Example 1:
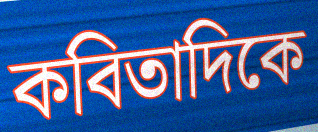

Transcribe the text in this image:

কবিতাদিকে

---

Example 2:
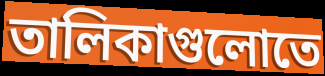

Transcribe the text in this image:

তালিকাগুলোতে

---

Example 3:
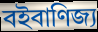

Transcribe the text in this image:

বইবাণিজ্য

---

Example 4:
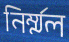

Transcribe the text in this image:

নির্ম্মল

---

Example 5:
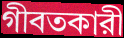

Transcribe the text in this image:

গীবতকারী